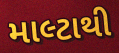
માલ્ટાથી